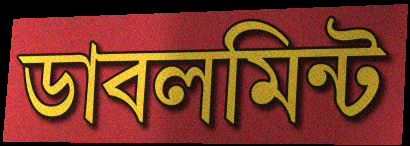
ডাবলমিন্ট